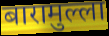
बारामुल्‍ला